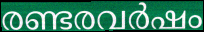
രണ്ടരവർഷം